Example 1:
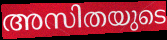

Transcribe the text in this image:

അസിതയുടെ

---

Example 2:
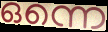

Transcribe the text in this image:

ഒന്നെ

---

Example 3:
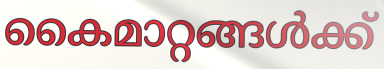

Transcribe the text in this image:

കൈമാറ്റങ്ങൾക്ക്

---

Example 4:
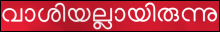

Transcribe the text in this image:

വാശിയല്ലായിരുന്നു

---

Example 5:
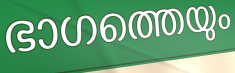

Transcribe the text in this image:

ഭാഗത്തെയും